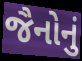
જૈનોનું